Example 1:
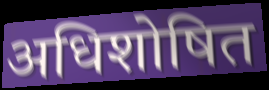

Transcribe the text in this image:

अधिशोषित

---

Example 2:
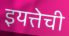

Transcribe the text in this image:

इयत्तेची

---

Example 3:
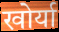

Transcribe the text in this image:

खोर्या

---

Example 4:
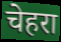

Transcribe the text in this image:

चेहरा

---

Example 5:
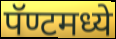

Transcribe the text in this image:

पॅण्टमध्ये